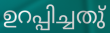
ഉറപ്പിച്ചതു്